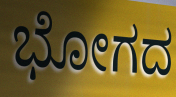
ಭೋಗದ